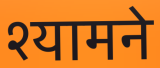
श्यामने